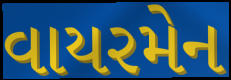
વાયરમેન